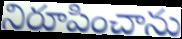
నిరూపించాను